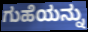
ಗುಹೆಯನ್ನು